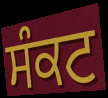
ਸੰਕਟ